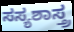
ಸಸ್ಯಶಾಸ್ತ್ರ